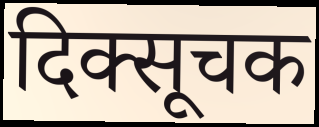
दिक्सूचक